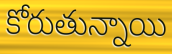
కోరుతున్నాయి